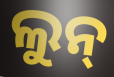
ଲୁନ୍